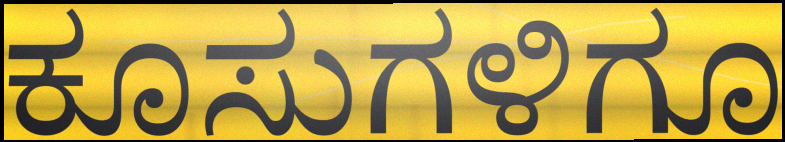
ಕೂಸುಗಳಿಗೂ